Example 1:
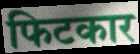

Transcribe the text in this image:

फिटकार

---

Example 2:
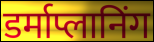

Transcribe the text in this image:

डर्माप्लानिंग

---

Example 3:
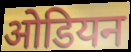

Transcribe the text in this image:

ओडियन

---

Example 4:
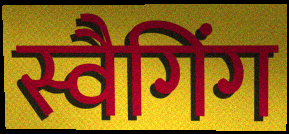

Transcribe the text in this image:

स्वैगिंग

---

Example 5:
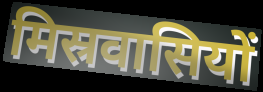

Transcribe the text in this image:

मिस्रवासियों